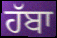
ਹੱਬਾ